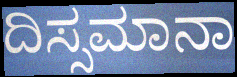
ದಿಸ್ಸಮಾನಾ